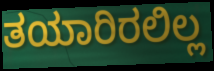
ತಯಾರಿರಲಿಲ್ಲ